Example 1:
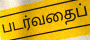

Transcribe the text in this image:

படர்வதைப்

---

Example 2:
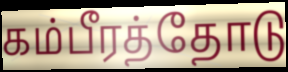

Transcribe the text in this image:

கம்பீரத்தோடு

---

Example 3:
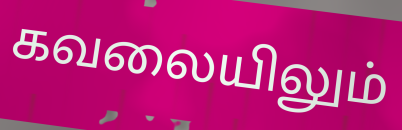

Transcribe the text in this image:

கவலையிலும்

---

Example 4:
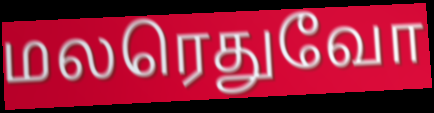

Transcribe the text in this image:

மலரெதுவோ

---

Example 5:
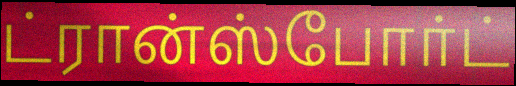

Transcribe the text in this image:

ட்ரான்ஸ்போர்ட்